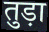
तुड़ा